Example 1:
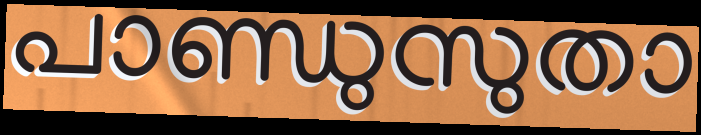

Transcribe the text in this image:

പാണ്ഡുസുതാ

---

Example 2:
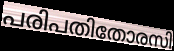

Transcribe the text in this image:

പരിപതിതോരസി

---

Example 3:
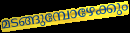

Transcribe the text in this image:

മടങ്ങുമ്പോഴേക്കും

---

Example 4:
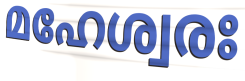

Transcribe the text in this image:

മഹേശ്വരഃ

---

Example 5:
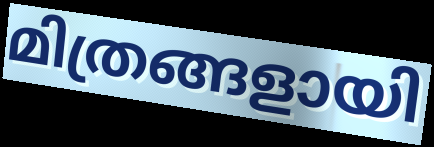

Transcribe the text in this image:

മിത്രങ്ങളായി